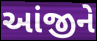
આંજીને